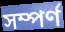
সম্পর্ণ